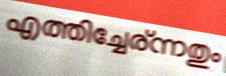
എത്തിച്ചേര്ന്നതും